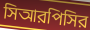
সিআরপিসির